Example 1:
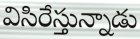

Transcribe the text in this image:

విసిరేస్తున్నాడు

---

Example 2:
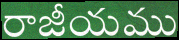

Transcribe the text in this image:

రాజీయము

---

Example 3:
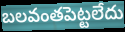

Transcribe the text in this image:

బలవంతపెట్టలేదు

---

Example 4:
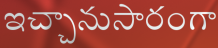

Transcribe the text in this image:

ఇచ్చానుసారంగా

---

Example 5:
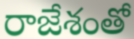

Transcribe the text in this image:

రాజేశంతో